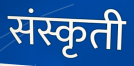
संस्कृती